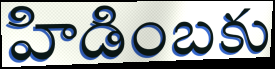
హిడింబకు